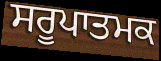
ਸਰੂਪਾਤਮਕ